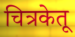
चित्रकेतू